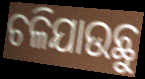
ଚଳିଯାଉଛୁ